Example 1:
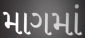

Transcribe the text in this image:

માગમાં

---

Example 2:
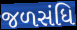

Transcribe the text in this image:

જળસંધિ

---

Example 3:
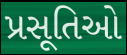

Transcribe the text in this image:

પ્રસૂતિઓ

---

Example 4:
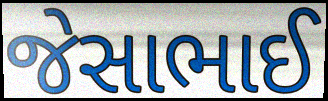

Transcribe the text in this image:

જેસાભાઈ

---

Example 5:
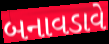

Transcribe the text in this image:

બનાવડાવે